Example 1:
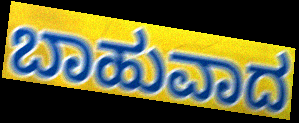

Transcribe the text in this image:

ಬಾಹುವಾದ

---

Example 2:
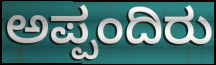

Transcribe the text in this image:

ಅಪ್ಪಂದಿರು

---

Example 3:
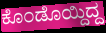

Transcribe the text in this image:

ಕೊಂಡೊಯ್ದಿದ್ದ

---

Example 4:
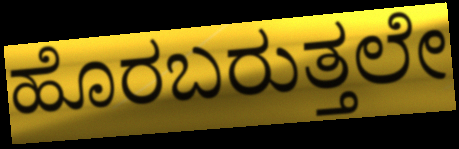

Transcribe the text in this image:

ಹೊರಬರುತ್ತಲೇ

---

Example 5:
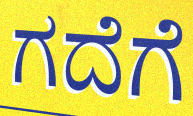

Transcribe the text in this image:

ಗದೆಗೆ